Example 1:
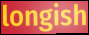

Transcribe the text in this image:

longish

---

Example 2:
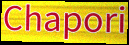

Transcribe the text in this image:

Chapori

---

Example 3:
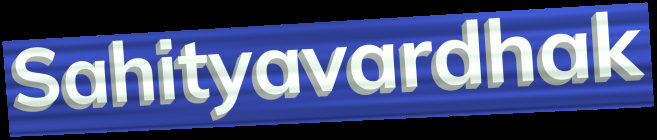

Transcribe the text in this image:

Sahityavardhak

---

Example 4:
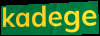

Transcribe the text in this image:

kadege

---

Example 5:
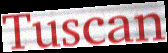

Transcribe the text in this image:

Tuscan